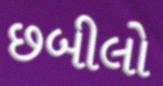
છબીલો